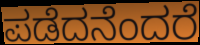
ಪಡೆದನೆಂದರೆ